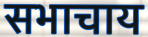
सभाचाय